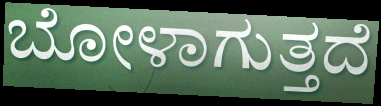
ಬೋಳಾಗುತ್ತದೆ